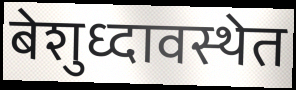
बेशुध्दावस्थेत